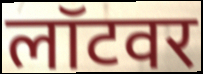
लॉटवर